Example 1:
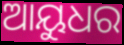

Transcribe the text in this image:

ଆୟୁଧର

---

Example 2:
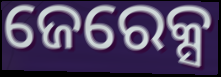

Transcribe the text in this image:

ଜେରେକ୍ସ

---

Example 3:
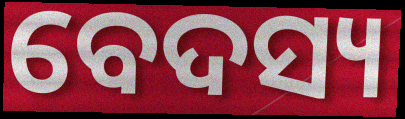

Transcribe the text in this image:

ବେଦସ୍ୟ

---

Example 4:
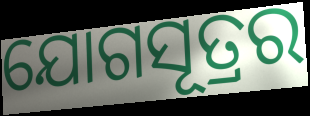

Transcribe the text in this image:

ଯୋଗସୂତ୍ରର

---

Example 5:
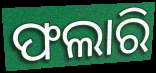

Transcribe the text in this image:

ଫଲାରି